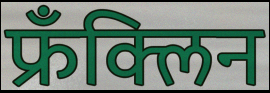
फ्रँक्लिन